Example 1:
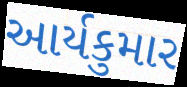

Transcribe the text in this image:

આર્યકુમાર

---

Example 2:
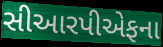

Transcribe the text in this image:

સીઆરપીએફના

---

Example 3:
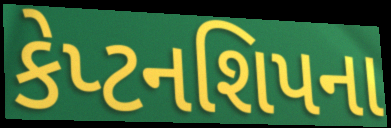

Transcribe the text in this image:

કેપ્ટનશિપના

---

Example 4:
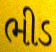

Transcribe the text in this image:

ભીડ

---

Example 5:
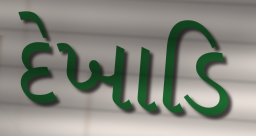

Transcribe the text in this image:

દેખાડિ